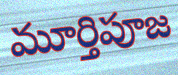
మూర్తిపూజ